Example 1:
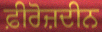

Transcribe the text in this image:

ਫ਼ੀਰੋਜ਼ਦੀਨ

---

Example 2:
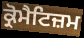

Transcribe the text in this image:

ਕ੍ਰੋਮੈਟਿਜ਼ਮ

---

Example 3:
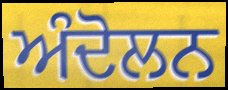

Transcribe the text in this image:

ਅੰਦੋਲਨ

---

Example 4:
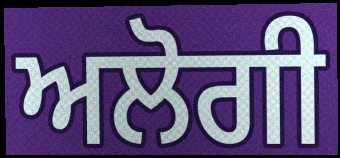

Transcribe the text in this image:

ਅਲੋਗੀ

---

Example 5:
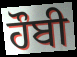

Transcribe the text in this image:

ਹੌਬੀ